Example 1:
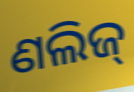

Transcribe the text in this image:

ଣଲିଜ୍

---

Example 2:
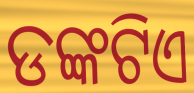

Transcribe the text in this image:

ଡଙ୍କଟିଏ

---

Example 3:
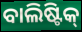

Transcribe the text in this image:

ବାଲିଷ୍ଟିକ୍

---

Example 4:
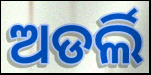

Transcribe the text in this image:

ଅଡର୍ଲି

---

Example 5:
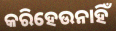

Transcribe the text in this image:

କରିହେଉନାହିଁ